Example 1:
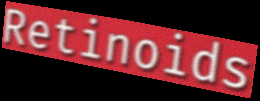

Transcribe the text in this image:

Retinoids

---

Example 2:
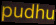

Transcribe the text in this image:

pudhu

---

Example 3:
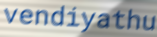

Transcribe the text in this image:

vendiyathu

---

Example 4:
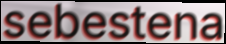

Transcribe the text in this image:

sebestena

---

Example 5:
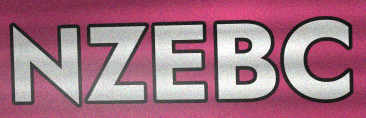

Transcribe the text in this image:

NZEBC